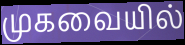
முகவையில்